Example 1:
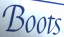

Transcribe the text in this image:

Boots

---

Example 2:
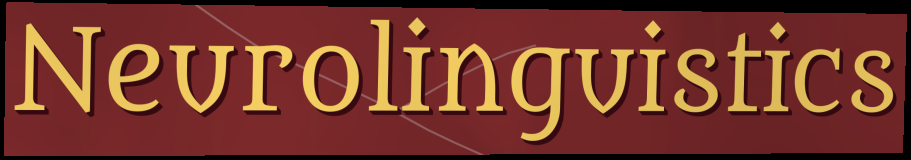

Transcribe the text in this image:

Neurolinguistics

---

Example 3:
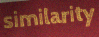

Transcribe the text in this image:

similarity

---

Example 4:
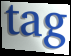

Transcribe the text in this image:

tag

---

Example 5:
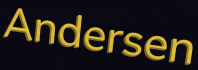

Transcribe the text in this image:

Andersen